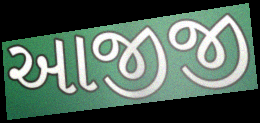
આજીજી